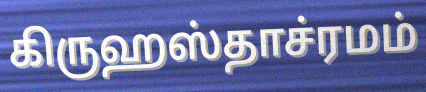
கிருஹஸ்தாச்ரமம்